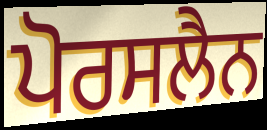
ਪੋਰਸਲੈਨ